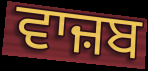
ਵਾਜ਼ਬ